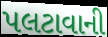
પલટાવાની